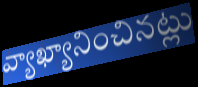
వ్యాఖ్యానించినట్లు